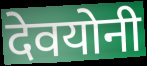
देवयोनी